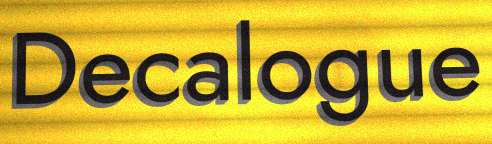
Decalogue